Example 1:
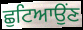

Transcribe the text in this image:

ਛੁਟਿਆਉਂਣ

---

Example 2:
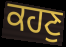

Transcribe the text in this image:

ਕਹਣੁ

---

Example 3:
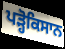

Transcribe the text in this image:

ਪੜ੍ਹੋਕਿਸਾਨ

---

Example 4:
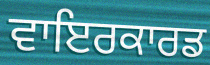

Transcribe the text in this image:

ਵਾਇਰਕਾਰਡ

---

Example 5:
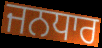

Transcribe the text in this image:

ਜਨਧਾਰ